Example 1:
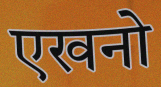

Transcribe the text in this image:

एखनो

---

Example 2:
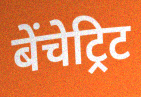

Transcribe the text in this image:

बेंचेट्रिट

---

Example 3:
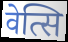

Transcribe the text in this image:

वेत्सि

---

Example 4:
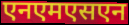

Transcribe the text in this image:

एनएमएसएन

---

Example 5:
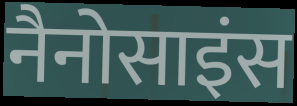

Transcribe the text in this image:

नैनोसाइंस